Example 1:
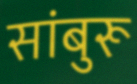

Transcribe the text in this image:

सांबुरू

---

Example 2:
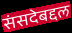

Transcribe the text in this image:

संसदेबद्दल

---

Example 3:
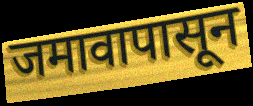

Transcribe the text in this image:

जमावापासून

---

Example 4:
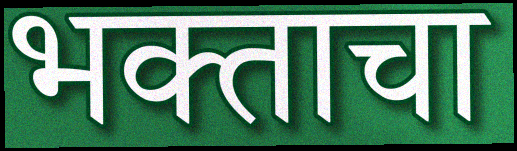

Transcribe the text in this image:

भक्ताचा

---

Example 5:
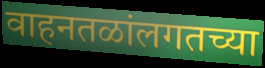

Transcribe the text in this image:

वाहनतळांलगतच्या